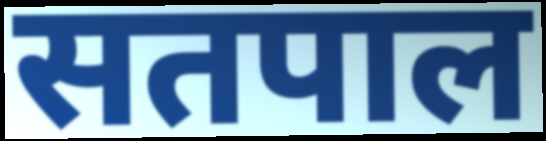
सतपाल